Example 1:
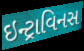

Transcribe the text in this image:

ઇન્ટ્રાવિનસ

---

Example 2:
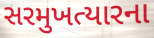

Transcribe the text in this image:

સરમુખત્યારના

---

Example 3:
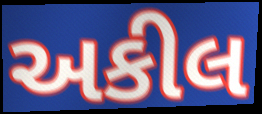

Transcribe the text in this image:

અકીલ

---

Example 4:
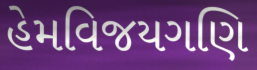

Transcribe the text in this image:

હેમવિજયગણિ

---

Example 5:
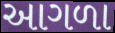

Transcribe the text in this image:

આગળા